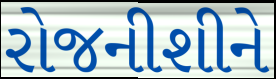
રોજનીશીને